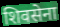
शिवसेना